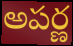
అపర్ణ